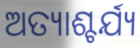
ଅତ୍ୟାଶ୍ଚର୍ଯ୍ୟ